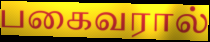
பகைவரால்